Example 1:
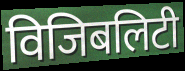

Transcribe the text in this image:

विजिबलिटी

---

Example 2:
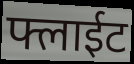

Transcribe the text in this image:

फ्लाईट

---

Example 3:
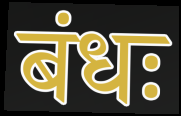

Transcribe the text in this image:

बंधः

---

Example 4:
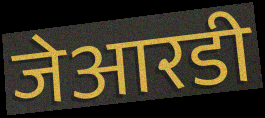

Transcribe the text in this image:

जेआरडी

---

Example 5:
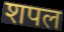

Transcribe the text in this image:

शपल